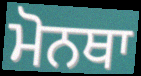
ਮੋਨਥਾ